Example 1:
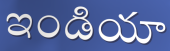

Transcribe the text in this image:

ఇండియా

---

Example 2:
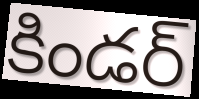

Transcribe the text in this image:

కిండర్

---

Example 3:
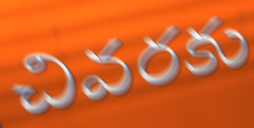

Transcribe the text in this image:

చివరకు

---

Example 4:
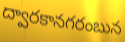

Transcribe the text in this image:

ద్వారకానగరంబున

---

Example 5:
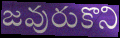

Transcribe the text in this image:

జవురుకొని